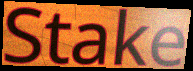
Stake